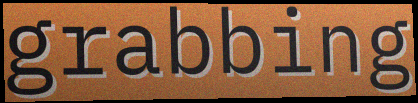
grabbing